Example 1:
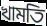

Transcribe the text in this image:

খামতি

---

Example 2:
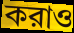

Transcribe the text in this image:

করাও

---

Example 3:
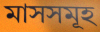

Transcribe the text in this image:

মাসসমূহ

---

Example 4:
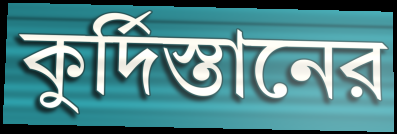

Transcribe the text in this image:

কুর্দিস্তানের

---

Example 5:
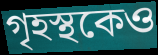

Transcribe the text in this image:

গৃহস্থকেও